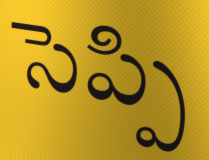
సెప్పి